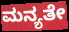
ಮನ್ಯತೇ